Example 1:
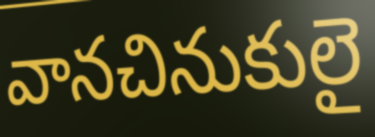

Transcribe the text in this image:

వానచినుకులై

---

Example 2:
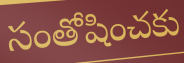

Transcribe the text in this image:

సంతోషించకు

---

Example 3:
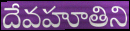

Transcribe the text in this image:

దేవహూతిని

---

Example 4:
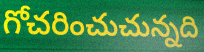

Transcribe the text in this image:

గోచరించుచున్నది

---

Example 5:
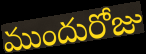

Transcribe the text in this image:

ముందురోజు